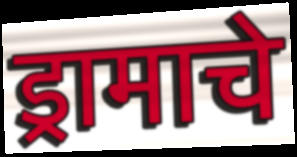
ड्रामाचे